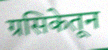
ग्रसिकेतून